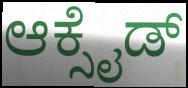
ಆಕ್ಸೈಡ್